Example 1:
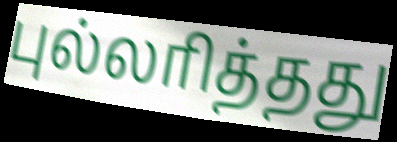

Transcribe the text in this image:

புல்லரித்தது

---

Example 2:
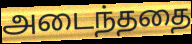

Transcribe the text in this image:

அடைந்ததை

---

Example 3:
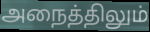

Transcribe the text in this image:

அநைத்திலும்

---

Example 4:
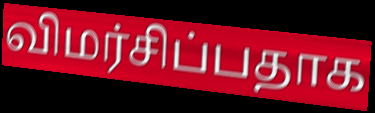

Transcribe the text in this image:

விமர்சிப்பதாக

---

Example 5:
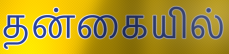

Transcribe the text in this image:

தன்கையில்